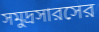
সমুদ্রসারসের